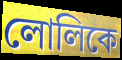
লোলিকে